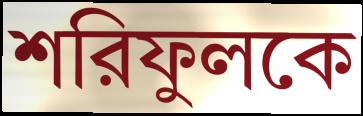
শরিফুলকে